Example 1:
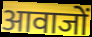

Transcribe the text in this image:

आवाजों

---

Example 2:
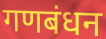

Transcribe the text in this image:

गणबंधन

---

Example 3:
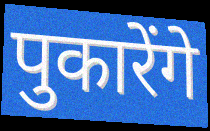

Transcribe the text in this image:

पुकारेंगे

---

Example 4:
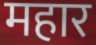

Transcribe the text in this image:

महार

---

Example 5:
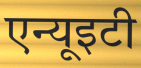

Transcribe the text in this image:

एन्यूइटी